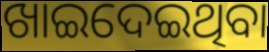
ଖାଇଦେଇଥିବା